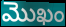
మొఖం